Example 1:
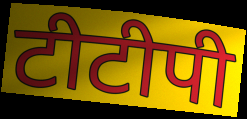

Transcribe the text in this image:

टीटीपी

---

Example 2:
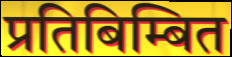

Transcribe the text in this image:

प्रतिबिम्बित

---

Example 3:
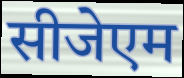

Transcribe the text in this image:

सीजेएम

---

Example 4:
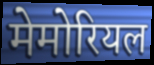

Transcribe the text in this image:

मेमोरियल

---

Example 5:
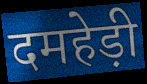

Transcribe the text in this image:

दमहेड़ी